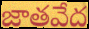
జాతవేద